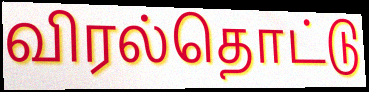
விரல்தொட்டு